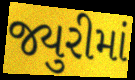
જ્યુરીમાં